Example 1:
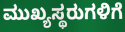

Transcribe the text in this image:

ಮುಖ್ಯಸ್ಥರುಗಳಿಗೆ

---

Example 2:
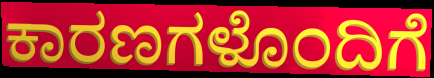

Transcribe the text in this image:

ಕಾರಣಗಳೊಂದಿಗೆ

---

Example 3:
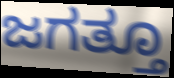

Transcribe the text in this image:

ಜಗತ್ತೂ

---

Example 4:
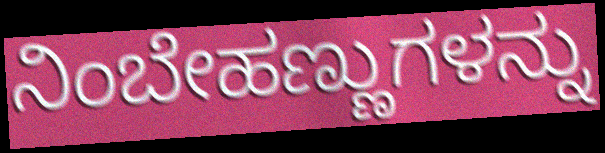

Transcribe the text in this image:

ನಿಂಬೇಹಣ್ಣುಗಳನ್ನು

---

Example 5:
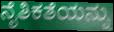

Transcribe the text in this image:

ನೈತಿಕತೆಯನ್ನು